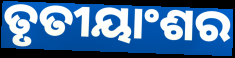
ତୃତୀୟାଂଶର